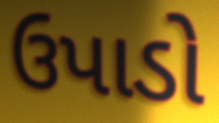
ઉપાડો